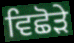
ਵਿਛੋੜੇ